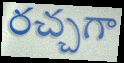
రచ్చగా